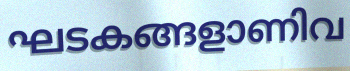
ഘടകങ്ങളാണിവ